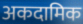
अकदामिक